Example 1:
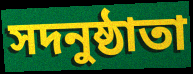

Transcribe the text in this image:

সদনুষ্ঠাতা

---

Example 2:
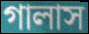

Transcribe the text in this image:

গালাস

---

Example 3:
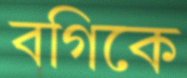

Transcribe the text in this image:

বগিকে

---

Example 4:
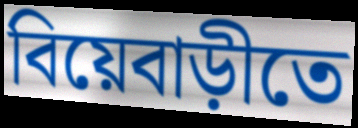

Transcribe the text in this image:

বিয়েবাড়ীতে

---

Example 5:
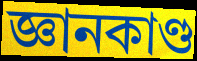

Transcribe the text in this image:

জ্ঞানকাণ্ড